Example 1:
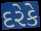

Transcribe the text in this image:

દરેકે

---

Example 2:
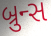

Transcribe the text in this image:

બ્રુન્સ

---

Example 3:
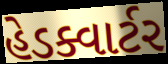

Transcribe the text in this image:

હેડક્વાર્ટર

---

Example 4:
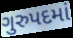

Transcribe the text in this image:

ગુરુપદમાં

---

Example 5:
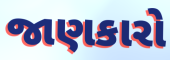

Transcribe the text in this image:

જાણકારો